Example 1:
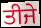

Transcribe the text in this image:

ਤੀਜੇ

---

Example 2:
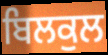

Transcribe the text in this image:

ਬਿਲਕੁਲ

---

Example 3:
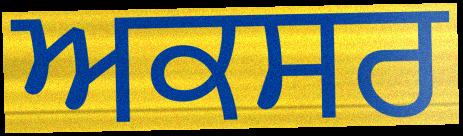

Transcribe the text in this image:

ਅਕਸਰ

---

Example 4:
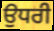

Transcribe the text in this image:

ਉਧਰੀ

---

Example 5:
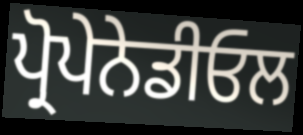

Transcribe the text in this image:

ਪ੍ਰੋਪੇਨੇਡੀਓਲ